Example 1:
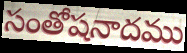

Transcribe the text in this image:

సంతోషనాదము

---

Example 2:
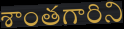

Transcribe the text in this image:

శాంతగారిని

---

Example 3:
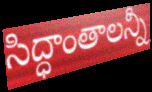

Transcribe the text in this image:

సిద్ధాంతాలన్నీ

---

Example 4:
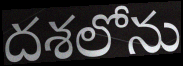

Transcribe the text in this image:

దశలోను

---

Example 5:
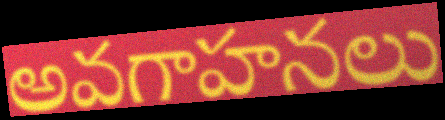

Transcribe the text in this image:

అవగాహనలు